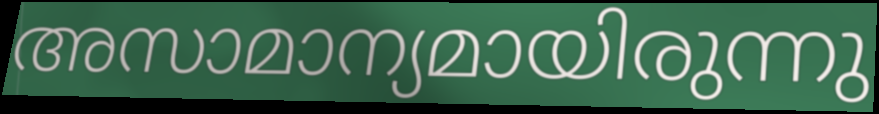
അസാമാന്യമായിരുന്നു